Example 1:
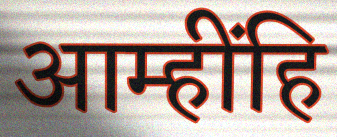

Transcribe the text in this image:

आम्हींहि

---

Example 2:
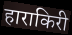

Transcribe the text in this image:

हाराकिरी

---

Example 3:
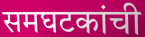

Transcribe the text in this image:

समघटकांची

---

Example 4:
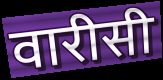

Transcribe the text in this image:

वारीसी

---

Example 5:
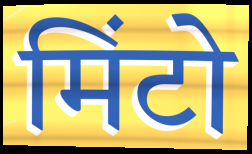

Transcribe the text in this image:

मिंटो